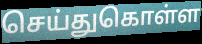
செய்துகொள்ள